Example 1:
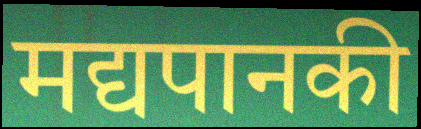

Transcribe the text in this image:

मद्यपानकी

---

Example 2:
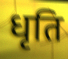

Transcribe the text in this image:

धृति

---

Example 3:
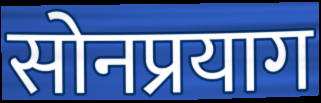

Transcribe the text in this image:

सोनप्रयाग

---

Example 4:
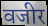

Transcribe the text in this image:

वजीर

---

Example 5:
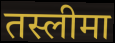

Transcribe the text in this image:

तस्लीमा